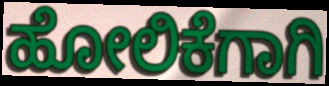
ಹೋಲಿಕೆಗಾಗಿ